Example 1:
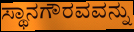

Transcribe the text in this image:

ಸ್ಥಾನಗೌರವವನ್ನು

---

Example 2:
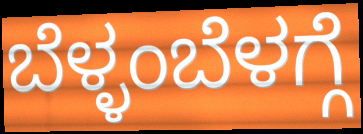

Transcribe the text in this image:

ಬೆಳ್ಳಂಬೆಳಗ್ಗೆ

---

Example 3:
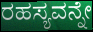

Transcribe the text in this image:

ರಹಸ್ಯವನ್ನೇ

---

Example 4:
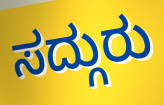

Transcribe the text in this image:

ಸದ್ಗುರು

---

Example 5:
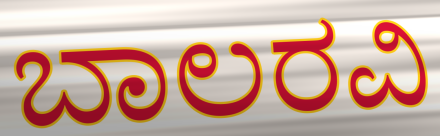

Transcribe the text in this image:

ಬಾಲರವಿ